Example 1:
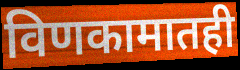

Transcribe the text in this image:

विणकामातही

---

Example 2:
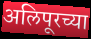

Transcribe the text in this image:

अलिपूरच्या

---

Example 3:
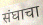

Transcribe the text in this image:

संघाचा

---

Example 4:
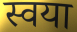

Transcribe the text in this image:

स्वया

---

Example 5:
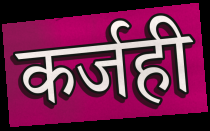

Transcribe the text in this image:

कर्जही